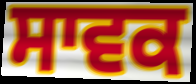
ਸਾਵਕ